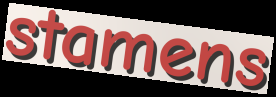
stamens